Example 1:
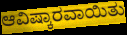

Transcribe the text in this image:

ಆವಿಷ್ಕಾರವಾಯಿತು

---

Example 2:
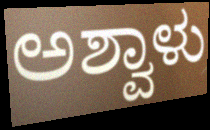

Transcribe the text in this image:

ಅಶ್ವಾಳು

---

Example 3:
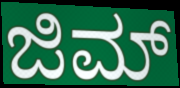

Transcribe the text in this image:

ಜಿಮ್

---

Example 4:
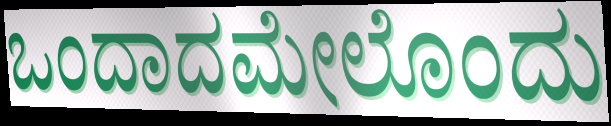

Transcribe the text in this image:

ಒಂದಾದಮೇಲೊಂದು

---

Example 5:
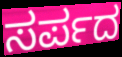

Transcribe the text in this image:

ಸರ್ಪದ